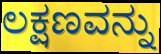
ಲಕ್ಷಣವನ್ನು